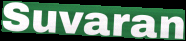
Suvaran